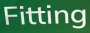
Fitting